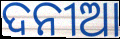
ଦନୀଆ